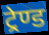
ट्रेण्ड